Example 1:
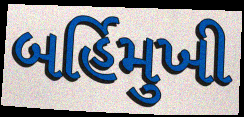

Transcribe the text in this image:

બર્હિમુખી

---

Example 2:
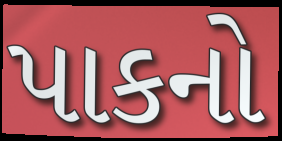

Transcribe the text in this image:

પાકનો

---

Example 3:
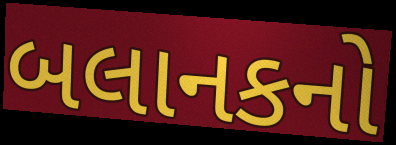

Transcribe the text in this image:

બલાનકનો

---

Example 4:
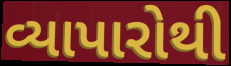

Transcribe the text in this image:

વ્યાપારોથી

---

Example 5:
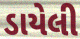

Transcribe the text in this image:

ડાયેલી